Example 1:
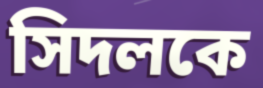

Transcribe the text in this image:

সিদলকে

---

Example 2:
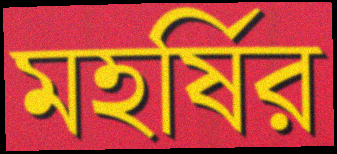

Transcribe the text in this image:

মহর্ষির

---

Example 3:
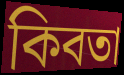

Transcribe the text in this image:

কিবতা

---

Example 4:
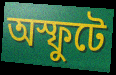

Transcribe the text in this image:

অস্ফুটে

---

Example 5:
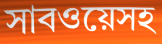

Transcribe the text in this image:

সাবওয়েসহ